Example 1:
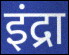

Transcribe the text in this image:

इंद्रा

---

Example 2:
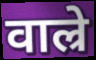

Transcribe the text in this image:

वाल्रे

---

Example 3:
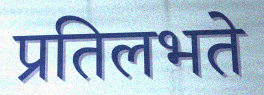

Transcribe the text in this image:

प्रतिलभते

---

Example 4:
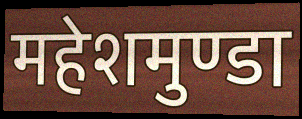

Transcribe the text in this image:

महेशमुण्डा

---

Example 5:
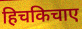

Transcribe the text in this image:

हिचकिचाए